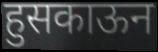
हुसकाऊन